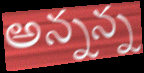
అన్నన్న